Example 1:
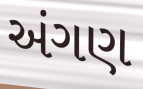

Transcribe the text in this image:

અંગણ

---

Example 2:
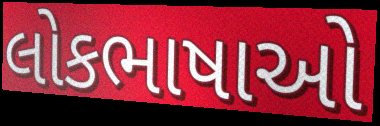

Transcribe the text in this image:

લોકભાષાઓ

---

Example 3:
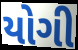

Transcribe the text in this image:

યોગી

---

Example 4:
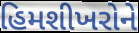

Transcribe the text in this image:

હિમશીખરોને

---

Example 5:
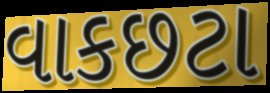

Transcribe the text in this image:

વાકછટા